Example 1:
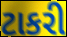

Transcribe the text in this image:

ટાકરી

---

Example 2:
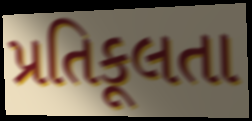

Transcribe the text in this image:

પ્રતિકૂલતા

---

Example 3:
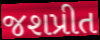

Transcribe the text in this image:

જશપ્રીત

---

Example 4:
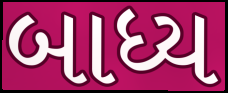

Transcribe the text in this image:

બાધ્ય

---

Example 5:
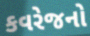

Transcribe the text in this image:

કવરેજનો